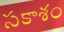
సకాశం